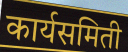
कार्यसमिती